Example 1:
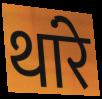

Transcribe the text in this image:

थांरे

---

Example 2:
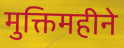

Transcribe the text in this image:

मुक्तिमहीने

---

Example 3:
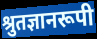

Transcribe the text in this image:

श्रुतज्ञानरूपी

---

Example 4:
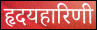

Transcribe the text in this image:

हृदयहारिणी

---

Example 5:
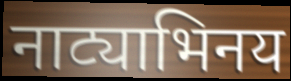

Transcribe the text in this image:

नाट्याभिनय